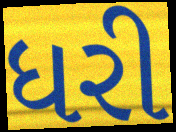
ધરી